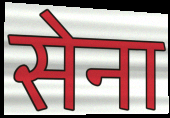
सेना